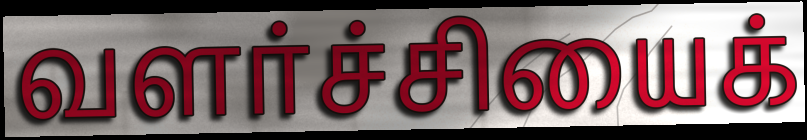
வளர்ச்சியைக்